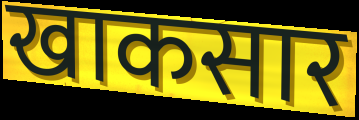
खाकसार